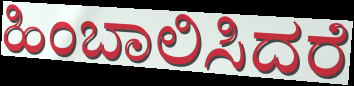
ಹಿಂಬಾಲಿಸಿದರೆ